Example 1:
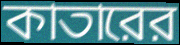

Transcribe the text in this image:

কাতারের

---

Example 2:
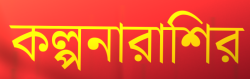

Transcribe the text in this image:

কল্পনারাশির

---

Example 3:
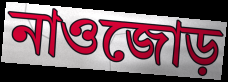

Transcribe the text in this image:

নাওজোড়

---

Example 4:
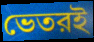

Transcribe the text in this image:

ভেতরই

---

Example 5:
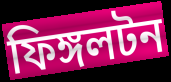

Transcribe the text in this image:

ফিঙ্গলটন